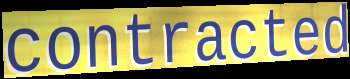
contracted